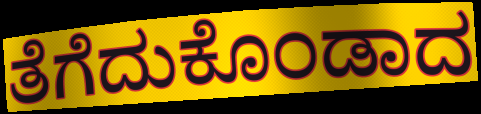
ತೆಗೆದುಕೊಂಡಾದ